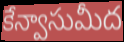
కేన్వాసుమీద